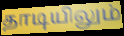
தாடியிலும்